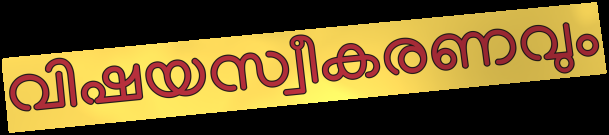
വിഷയസ്വീകരണവും